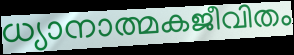
ധ്യാനാത്മകജീവിതം